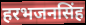
हरभजनसिंह